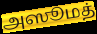
அஸூமத்